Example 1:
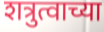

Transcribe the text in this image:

शत्रुत्वाच्या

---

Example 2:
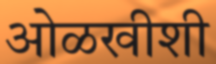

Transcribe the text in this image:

ओळखीशी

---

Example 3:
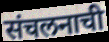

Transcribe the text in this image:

संचलनाची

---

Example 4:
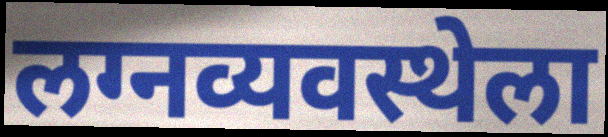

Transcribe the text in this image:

लग्नव्यवस्थेला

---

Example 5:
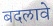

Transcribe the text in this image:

बदलावे